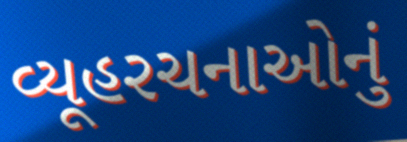
વ્યૂહરચનાઓનું